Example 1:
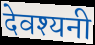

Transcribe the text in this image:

देवश्यनी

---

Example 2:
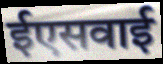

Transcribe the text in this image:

ईएसवाई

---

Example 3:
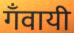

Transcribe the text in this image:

गँवायी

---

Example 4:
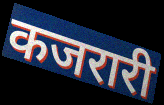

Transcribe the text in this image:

कजरारी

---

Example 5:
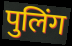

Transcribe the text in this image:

पुलिंग